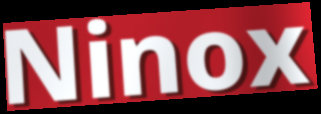
Ninox